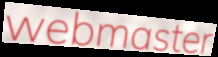
webmaster